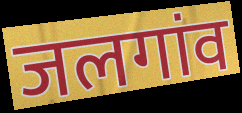
जलगांव